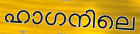
ഹാഗനിലെ